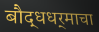
बौद्धधर्माचा